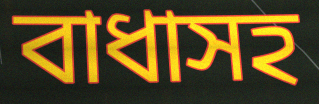
বাধাসহ